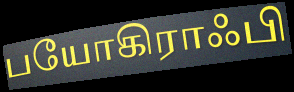
பயோகிராஃபி